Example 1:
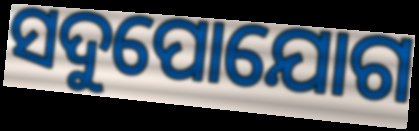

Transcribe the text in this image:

ସଦୁପୋଯୋଗ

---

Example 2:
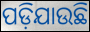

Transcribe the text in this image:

ପଡ଼ିଯାଉଛି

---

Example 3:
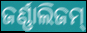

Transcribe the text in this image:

ଜର୍ଣ୍ଣାଲିଜମ୍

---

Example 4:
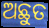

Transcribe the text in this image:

ଅଛୁତ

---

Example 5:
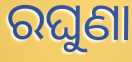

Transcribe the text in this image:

ରଘୁଣା